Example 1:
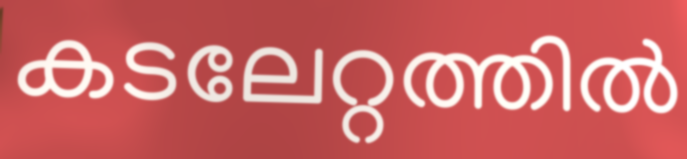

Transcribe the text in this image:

കടലേറ്റത്തിൽ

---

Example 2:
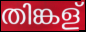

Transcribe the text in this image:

തിങ്കള്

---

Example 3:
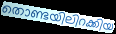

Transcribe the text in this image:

തൊണ്ടയിലിറക്കിയ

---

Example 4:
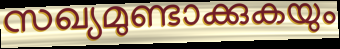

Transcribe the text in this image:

സഖ്യമുണ്ടാക്കുകയും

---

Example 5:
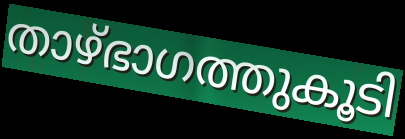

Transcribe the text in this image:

താഴ്ഭാഗത്തുകൂടി